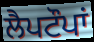
ਲੈਪਟੌਪਾਂ